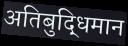
अतिबुद्धिमान